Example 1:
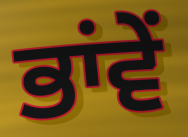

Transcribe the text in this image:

ਭਾਂਵੇਂ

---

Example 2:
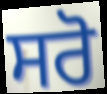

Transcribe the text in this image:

ਸਰੋ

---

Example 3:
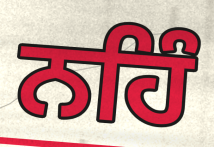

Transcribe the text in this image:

ਨਹਿੰ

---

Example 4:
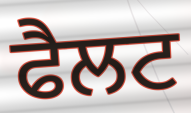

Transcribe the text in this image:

ਫੈਲਟ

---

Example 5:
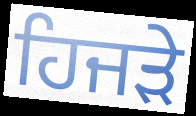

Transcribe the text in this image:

ਹਿਜੜੇ